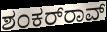
ಶಂಕರ್‌ರಾವ್